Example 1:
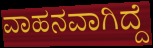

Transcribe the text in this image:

ವಾಹನವಾಗಿದ್ದೆ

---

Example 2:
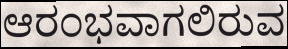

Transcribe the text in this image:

ಆರಂಭವಾಗಲಿರುವ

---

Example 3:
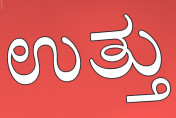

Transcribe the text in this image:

ಉತ್ತು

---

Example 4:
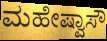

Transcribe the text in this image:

ಮಹೇಷ್ವಾಸೌ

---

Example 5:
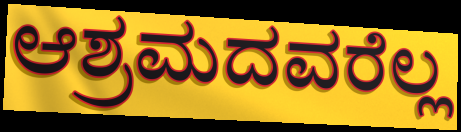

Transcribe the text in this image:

ಆಶ್ರಮದವರೆಲ್ಲ